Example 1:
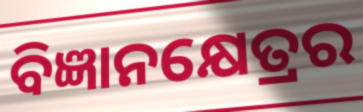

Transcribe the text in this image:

ବିଜ୍ଞାନକ୍ଷେତ୍ରର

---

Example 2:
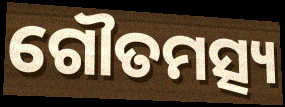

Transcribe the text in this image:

ଗୌତମତ୍ସ୍ୟ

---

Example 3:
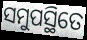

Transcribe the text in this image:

ସମୁପସ୍ଥିତେ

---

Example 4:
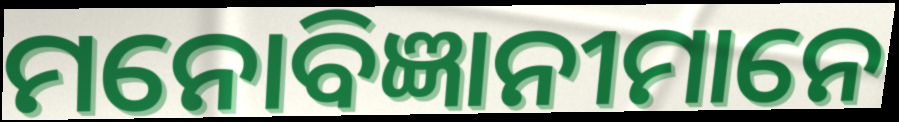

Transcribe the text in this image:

ମନୋବିଜ୍ଞାନୀମାନେ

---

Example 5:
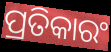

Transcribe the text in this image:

ପ୍ରତିକାରଂ